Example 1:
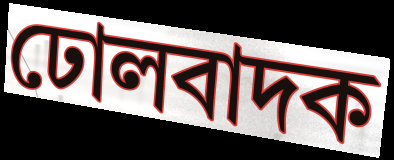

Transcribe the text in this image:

ঢোলবাদক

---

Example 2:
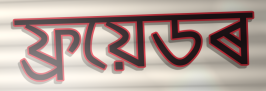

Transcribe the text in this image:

ফ্ৰয়েডৰ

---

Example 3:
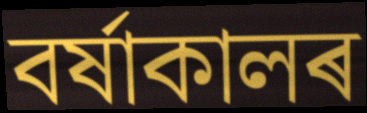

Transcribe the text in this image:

বৰ্ষাকালৰ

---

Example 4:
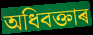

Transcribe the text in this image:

অধিবক্তাৰ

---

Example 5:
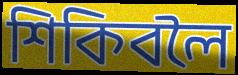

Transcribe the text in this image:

শিকিবলৈ